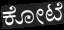
ಕೋಟೆ